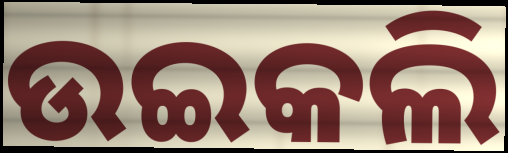
ଉଇକଲି